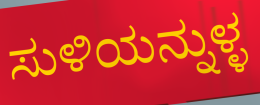
ಸುಳಿಯನ್ನುಳ್ಳ